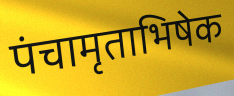
पंचामृताभिषेक